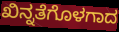
ಖಿನ್ನತೆಗೊಳಗಾದ